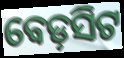
ବେଡ଼ସିଟ